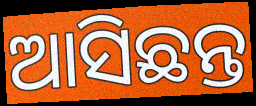
ଆସିଛନ୍ତ